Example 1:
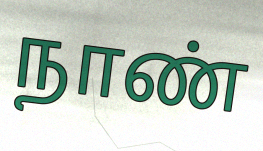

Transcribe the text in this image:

நாண்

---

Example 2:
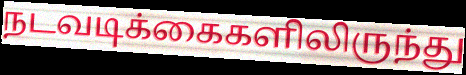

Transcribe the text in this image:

நடவடிக்கைகளிலிருந்து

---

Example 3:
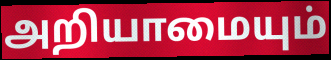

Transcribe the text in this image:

அறியாமையும்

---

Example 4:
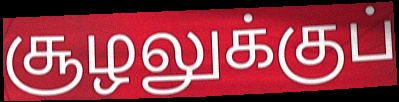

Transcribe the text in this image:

சூழலுக்குப்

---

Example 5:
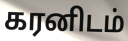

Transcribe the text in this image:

கரனிடம்